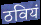
ठवियं